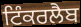
ਟਿੰਕਰਲੈਬ